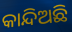
କାନ୍ଦିଅଛି